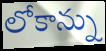
లోకాన్ను